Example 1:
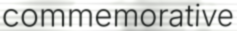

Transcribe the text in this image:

commemorative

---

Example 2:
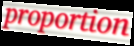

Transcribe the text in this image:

proportion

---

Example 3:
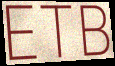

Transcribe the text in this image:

ETB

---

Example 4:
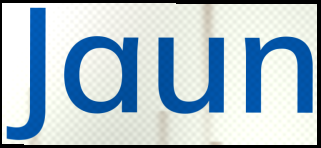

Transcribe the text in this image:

Jaun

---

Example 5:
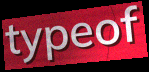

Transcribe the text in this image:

typeof